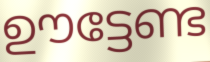
ഊട്ടേണ്ട